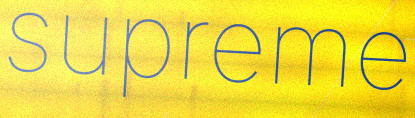
supreme